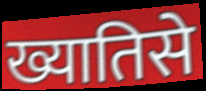
ख्यातिसे